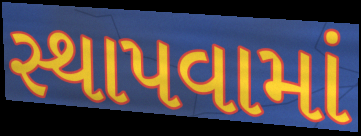
સ્થાપવામાં